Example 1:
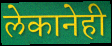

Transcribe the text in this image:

लेकानेही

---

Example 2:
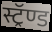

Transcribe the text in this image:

स्ट्रॅण्ड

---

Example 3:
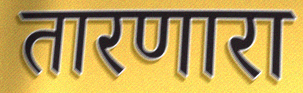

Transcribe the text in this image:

तारणारा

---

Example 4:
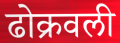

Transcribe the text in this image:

ढोक्रवली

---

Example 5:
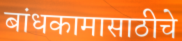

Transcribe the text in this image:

बांधकामासाठीचे